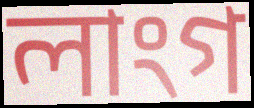
লাংগ